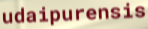
udaipurensis